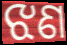
ଝଣ